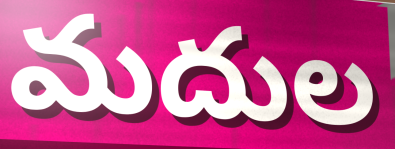
మదుల